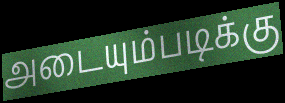
அடையும்படிக்கு